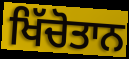
ਖਿੱਚੋਤਾਨ